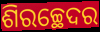
ଶିରଚ୍ଛେଦର